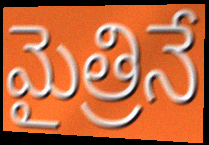
మైత్రినే